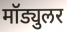
मॉड्युलर